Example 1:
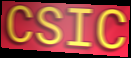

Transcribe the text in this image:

CSIC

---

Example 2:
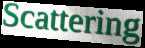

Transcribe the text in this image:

Scattering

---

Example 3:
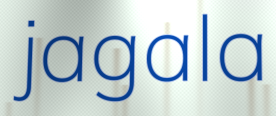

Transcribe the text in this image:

jagala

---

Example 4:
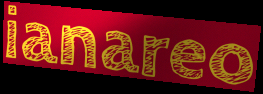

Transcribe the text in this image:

ianareo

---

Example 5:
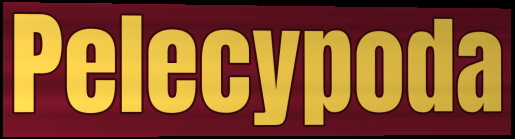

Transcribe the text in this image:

Pelecypoda